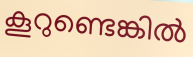
കൂറുണ്ടെങ്കിൽ